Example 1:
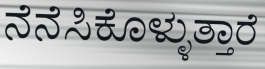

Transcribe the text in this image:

ನೆನೆಸಿಕೊಳ್ಳುತ್ತಾರೆ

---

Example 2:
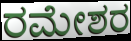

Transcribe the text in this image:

ರಮೇಶರ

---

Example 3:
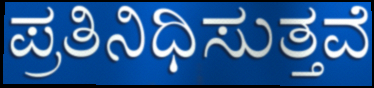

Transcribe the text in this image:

ಪ್ರತಿನಿಧಿಸುತ್ತವೆ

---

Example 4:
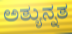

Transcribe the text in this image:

ಅತ್ಯುನ್ನತ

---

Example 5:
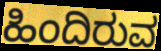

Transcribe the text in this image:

ಹಿಂದಿರುವ